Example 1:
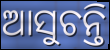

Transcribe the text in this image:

ଆସୁଚନ୍ତି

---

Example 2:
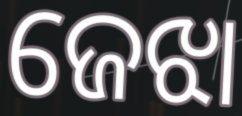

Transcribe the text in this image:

ଜେଝା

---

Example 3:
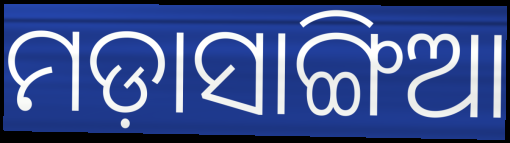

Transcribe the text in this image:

ମଡ଼ାସାଙ୍ଗିଆ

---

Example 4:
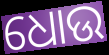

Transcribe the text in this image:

ଧୋଉ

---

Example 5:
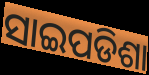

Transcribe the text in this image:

ସାଇପଡିଶା